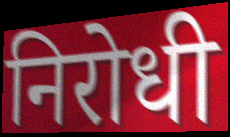
निरोधी